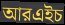
আরএইচ